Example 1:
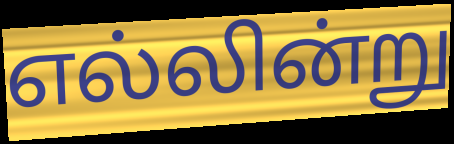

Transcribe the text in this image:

எல்லின்று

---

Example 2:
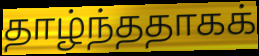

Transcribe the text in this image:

தாழ்ந்ததாகக்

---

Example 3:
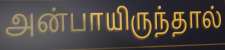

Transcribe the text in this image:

அன்பாயிருந்தால்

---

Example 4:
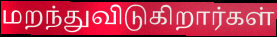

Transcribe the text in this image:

மறந்துவிடுகிறார்கள்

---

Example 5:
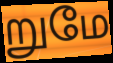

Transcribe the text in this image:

றுமே